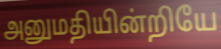
அனுமதியின்றியே